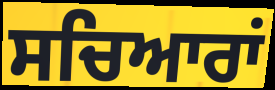
ਸਚਿਆਰਾਂ